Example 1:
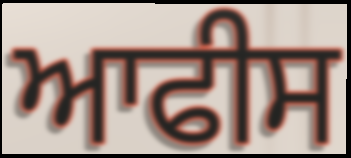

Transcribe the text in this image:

ਆਫੀਸ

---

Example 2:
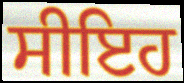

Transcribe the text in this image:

ਸੀਇਹ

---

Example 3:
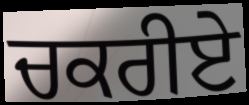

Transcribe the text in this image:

ਚਕਰੀਏ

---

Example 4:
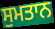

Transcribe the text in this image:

ਸੁਮਤਾਨ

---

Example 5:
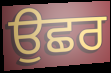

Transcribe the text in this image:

ਉਛਰ